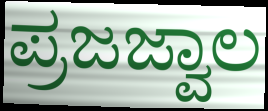
ಪ್ರಜಜ್ವಾಲ